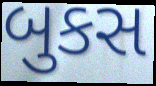
બુકસ